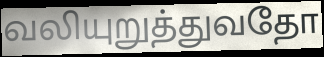
வலியுறுத்துவதோ